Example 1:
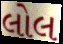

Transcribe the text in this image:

લોલ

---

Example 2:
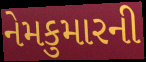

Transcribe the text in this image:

નેમકુમારની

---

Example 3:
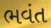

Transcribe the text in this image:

ભવંત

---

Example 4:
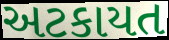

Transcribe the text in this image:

અટકાયત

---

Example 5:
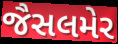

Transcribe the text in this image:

જૈસલમેર